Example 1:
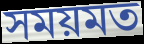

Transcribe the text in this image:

সময়মত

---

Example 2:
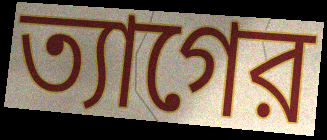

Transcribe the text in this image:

ত্যাগের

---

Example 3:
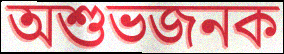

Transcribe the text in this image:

অশুভজনক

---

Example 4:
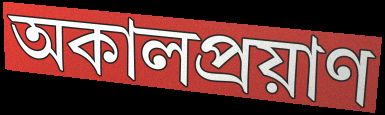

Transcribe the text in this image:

অকালপ্রয়াণ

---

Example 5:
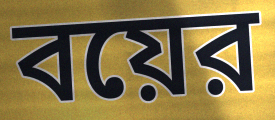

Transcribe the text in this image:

বয়ের